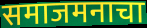
समाजमनाचा